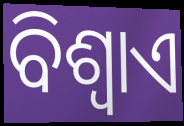
ବିଶ୍ୱାଏ